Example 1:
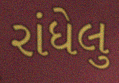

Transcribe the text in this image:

રાંધેલુ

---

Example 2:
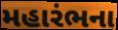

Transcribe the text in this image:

મહારંભના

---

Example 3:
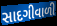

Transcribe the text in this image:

સાદગીવાળી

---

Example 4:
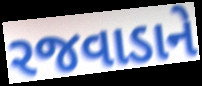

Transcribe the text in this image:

રજવાડાને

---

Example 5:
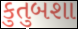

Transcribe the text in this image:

કુતુબશા